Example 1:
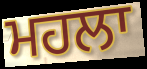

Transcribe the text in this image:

ਮਹਲਾ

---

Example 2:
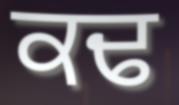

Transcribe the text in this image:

ਕਢ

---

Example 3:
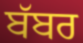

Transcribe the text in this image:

ਬੱਬਰ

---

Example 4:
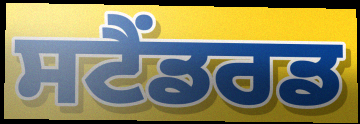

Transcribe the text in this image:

ਸਟੈਂਡਰਡ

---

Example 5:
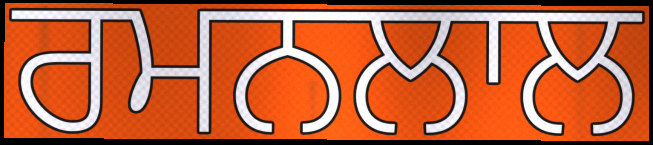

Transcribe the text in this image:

ਰਮਨਲਾਲ